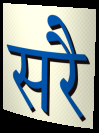
सरै